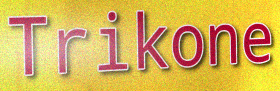
Trikone